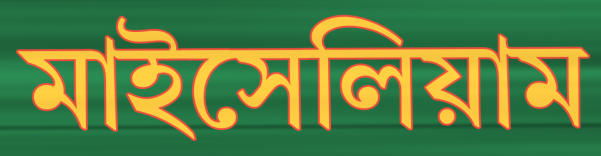
মাইসেলিয়াম